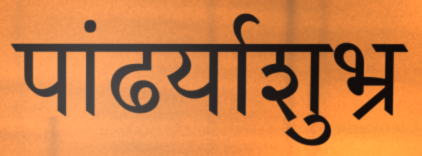
पांढर्याशुभ्र